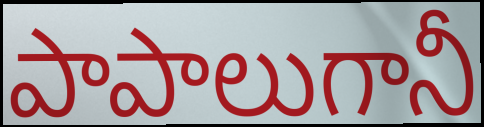
పాపాలుగానీ